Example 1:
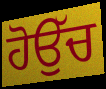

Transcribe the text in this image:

ਹੋਉੱਚ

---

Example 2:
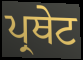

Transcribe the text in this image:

ਪ੍ਰਥੇਟ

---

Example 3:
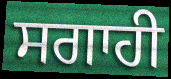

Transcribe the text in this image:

ਸਗਾਹੀ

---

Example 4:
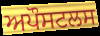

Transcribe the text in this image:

ਅਪੌਸਟਲਸ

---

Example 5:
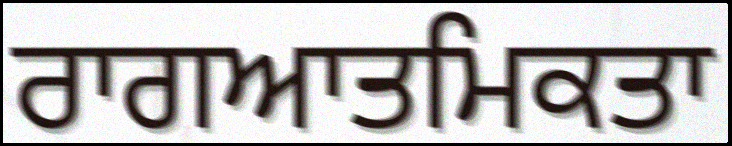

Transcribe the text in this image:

ਰਾਗਆਤਮਿਕਤਾ